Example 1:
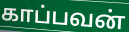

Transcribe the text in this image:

காப்பவன்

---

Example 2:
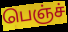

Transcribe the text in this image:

பெஞ்ச்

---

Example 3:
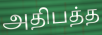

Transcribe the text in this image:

அதிபத்த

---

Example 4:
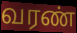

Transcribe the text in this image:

வரண்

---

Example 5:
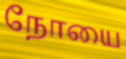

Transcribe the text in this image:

நோயை